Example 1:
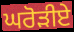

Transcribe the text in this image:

ਘਰੋੜੀਏ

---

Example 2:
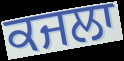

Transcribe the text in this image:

ਕਜਲਾ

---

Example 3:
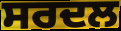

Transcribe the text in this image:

ਸਰਦਲ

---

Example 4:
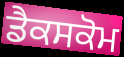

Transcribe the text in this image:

ਡੈਕਸਕੋਮ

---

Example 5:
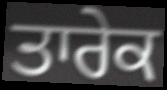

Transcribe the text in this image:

ਤਾਰੇਕ